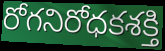
రోగనిరోధకశక్తి